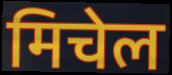
मिचेल